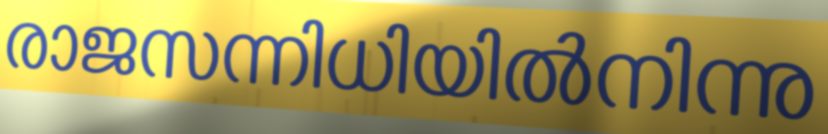
രാജസന്നിധിയിൽനിന്നു